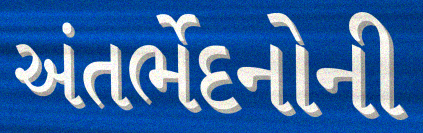
અંતર્ભેદનોની